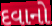
દવાનો